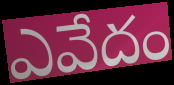
ఎవేదం